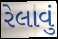
રેલાવું